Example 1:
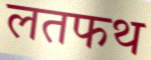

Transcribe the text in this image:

लतफथ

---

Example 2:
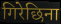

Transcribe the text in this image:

गिरेछिना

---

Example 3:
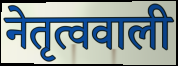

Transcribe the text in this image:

नेतृत्ववाली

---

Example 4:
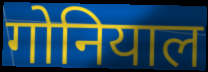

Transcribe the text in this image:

गोनियाल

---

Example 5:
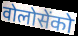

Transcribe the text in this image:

वोलोसेंको